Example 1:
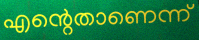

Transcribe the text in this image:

എന്റെതാണെന്ന്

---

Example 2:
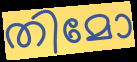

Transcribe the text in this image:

തിമോ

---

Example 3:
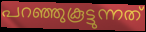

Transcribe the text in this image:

പറഞ്ഞുകൂട്ടുന്നത്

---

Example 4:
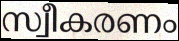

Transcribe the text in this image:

സ്വീകരണം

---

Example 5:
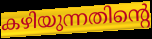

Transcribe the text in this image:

കഴിയുന്നതിന്റെ